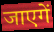
जाएगें